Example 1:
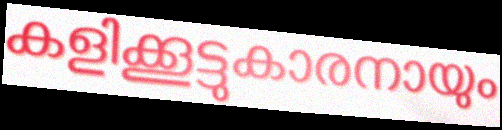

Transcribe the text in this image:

കളിക്കൂട്ടുകാരനായും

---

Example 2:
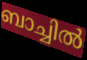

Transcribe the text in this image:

ബാച്ചിൽ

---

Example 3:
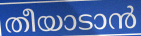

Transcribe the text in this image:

തീയാടാൻ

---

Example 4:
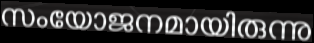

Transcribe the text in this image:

സംയോജനമായിരുന്നു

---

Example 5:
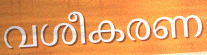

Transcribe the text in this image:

വശീകരണ